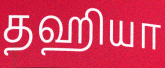
தஹியா